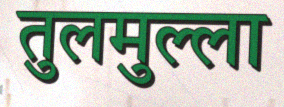
तुलमुल्ला